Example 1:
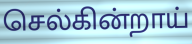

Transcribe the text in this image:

செல்கின்றாய்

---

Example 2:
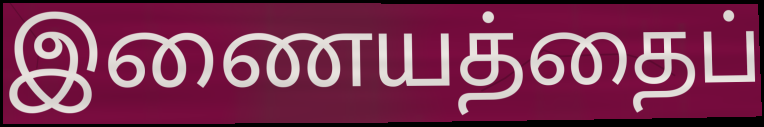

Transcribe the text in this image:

இணையத்தைப்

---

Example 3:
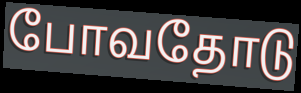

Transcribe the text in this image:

போவதோடு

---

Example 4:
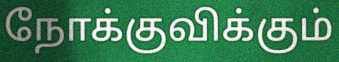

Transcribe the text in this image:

நோக்குவிக்கும்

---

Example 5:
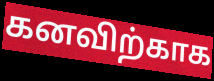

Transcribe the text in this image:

கனவிற்காக